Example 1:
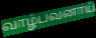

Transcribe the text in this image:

வாழ்பவனாய்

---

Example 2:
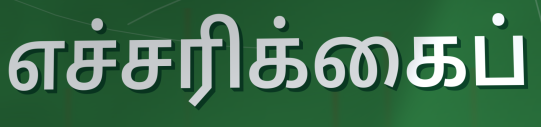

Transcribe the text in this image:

எச்சரிக்கைப்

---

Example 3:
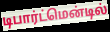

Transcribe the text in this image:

டிபார்ட்மென்டில்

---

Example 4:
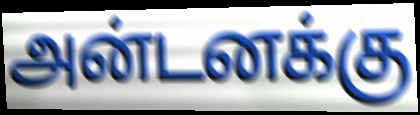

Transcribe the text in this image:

அன்டனக்கு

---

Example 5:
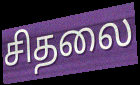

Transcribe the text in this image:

சிதலை